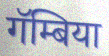
गॅम्बिया